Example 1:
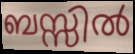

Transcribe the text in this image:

ബസ്സിൽ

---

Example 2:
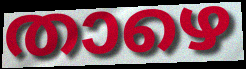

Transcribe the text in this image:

താഴെ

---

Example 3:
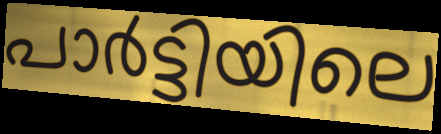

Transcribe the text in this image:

പാർട്ടിയിലെ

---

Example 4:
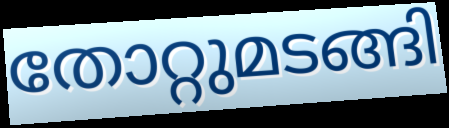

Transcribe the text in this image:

തോറ്റുമടങ്ങി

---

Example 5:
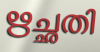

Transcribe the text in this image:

ഋച്ഛതി